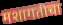
मशागतीचा